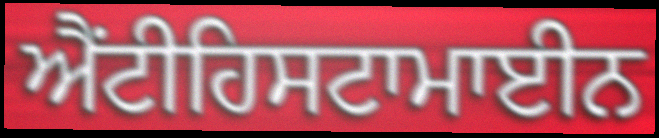
ਐਂਟੀਹਿਸਟਾਮਾਈਨ